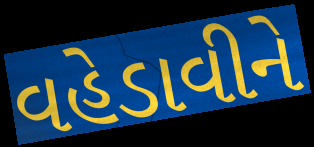
વહેડાવીને